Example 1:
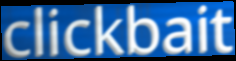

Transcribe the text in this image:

clickbait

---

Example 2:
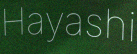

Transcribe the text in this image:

Hayashi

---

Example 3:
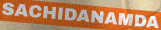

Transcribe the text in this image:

SACHIDANAMDA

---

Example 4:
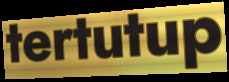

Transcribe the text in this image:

tertutup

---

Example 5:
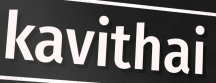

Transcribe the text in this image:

kavithai